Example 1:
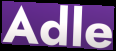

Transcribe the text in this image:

Adle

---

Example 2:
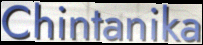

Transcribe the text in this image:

Chintanika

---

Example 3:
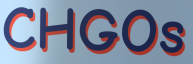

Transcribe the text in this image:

CHGOs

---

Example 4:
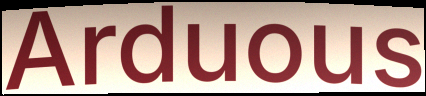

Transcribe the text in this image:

Arduous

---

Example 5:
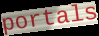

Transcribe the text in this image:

portals